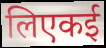
लिएकई